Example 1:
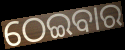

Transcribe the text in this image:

ଠେଇବାର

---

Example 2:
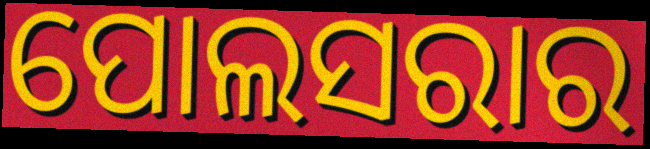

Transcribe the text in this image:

ପୋଲସରାର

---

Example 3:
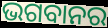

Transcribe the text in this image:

ଭଗବାନର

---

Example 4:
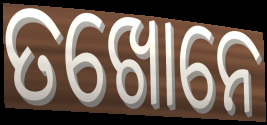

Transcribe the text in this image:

ତଖୋନେ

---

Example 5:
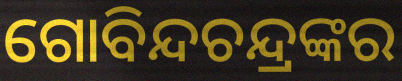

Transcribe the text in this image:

ଗୋବିନ୍ଦଚନ୍ଦ୍ରଙ୍କର